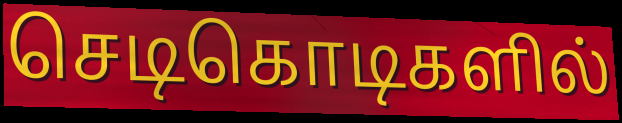
செடிகொடிகளில்